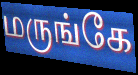
மருங்கே